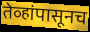
तेव्हांपासूनच